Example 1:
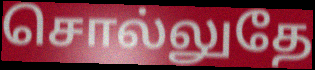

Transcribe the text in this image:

சொல்லுதே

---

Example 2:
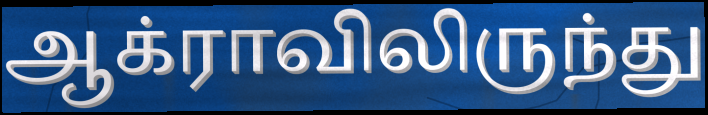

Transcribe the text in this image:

ஆக்ராவிலிருந்து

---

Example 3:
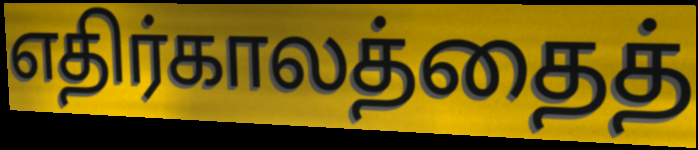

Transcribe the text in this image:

எதிர்காலத்தைத்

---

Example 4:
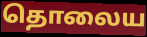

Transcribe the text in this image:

தொலைய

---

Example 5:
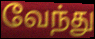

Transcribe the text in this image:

வேந்து